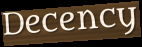
Decency